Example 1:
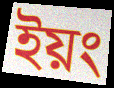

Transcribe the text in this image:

ইয়ং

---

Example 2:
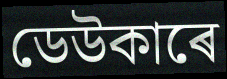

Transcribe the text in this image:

ডেউকাৰে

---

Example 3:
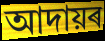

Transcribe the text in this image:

আদায়ৰ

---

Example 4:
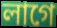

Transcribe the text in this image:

লাগে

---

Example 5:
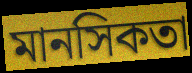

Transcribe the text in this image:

মানসিকতা